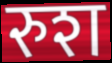
रुश